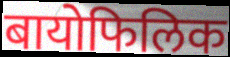
बायोफिलिक